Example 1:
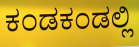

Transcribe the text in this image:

ಕಂಡಕಂಡಲ್ಲಿ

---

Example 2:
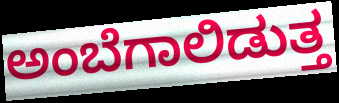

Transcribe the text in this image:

ಅಂಬೆಗಾಲಿಡುತ್ತ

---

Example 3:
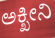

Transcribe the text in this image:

ಅಕ್ಖೀನಿ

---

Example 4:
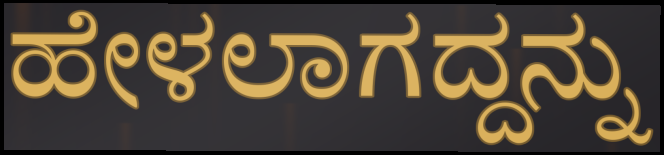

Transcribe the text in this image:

ಹೇಳಲಾಗದ್ದನ್ನು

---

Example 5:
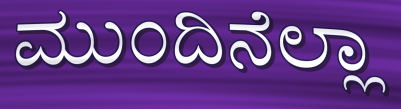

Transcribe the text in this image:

ಮುಂದಿನೆಲ್ಲಾ